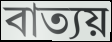
বাত্যয়